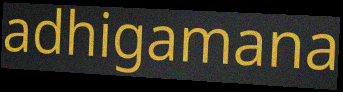
adhigamana